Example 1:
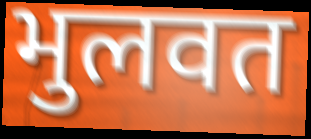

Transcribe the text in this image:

भुलवत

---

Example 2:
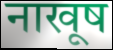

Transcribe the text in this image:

नाखूष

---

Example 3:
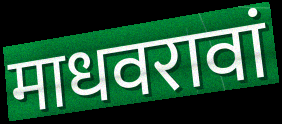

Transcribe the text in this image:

माधवरावां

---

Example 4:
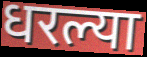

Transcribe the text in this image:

धरल्या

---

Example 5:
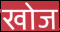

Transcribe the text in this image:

खोज